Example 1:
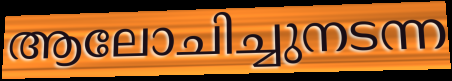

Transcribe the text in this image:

ആലോചിച്ചുനടന്ന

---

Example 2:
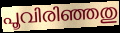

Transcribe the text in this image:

പൂവിരിഞ്ഞതു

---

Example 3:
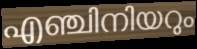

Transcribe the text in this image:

എഞ്ചിനിയറും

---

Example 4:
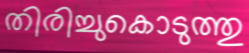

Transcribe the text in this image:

തിരിച്ചുകൊടുത്തു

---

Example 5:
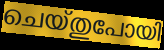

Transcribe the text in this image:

ചെയ്തുപോയി